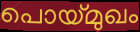
പൊയ്മുഖം